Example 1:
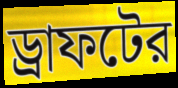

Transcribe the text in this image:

ড্রাফটের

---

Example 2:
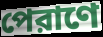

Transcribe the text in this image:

পেরাণে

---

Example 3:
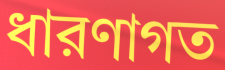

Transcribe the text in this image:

ধারণাগত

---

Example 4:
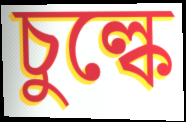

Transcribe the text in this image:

চুল্কে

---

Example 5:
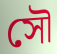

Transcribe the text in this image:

সৌ